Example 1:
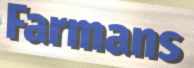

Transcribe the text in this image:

Farmans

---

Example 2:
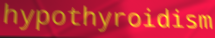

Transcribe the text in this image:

hypothyroidism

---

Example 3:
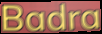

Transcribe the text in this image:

Badra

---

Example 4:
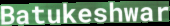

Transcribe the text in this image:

Batukeshwar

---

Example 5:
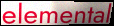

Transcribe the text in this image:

elemental